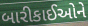
બારીકાઈઓને